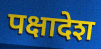
पक्षादेश